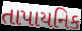
તાપાયનિક